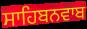
ਸਾਹਿਬਨਵਾਬ